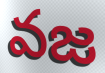
వజ